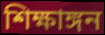
শিক্ষাঙ্গন